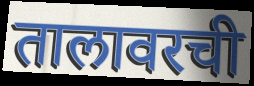
तालावरची